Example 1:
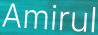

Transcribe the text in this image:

Amirul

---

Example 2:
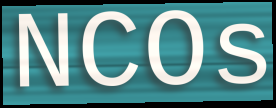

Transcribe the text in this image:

NCOs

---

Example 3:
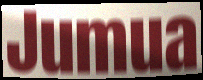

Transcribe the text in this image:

Jumua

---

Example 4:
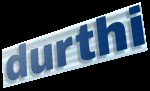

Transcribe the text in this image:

durthi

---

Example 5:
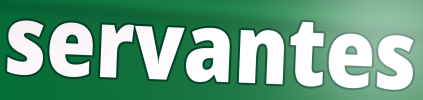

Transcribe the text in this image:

servantes